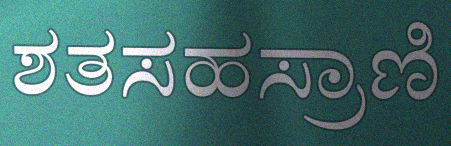
ಶತಸಹಸ್ರಾಣಿ